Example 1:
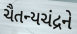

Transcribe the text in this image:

ચૈતન્યચંદ્રને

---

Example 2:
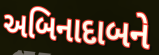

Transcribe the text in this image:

અબિનાદાબને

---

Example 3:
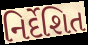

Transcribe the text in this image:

નિર્દેશિત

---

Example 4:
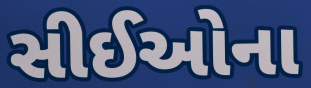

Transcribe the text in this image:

સીઈઓના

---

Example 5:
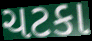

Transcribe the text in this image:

ચટકા